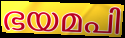
ഭയമപി